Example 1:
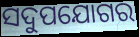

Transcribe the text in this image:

ସଦୁପଯୋଗର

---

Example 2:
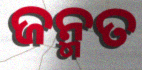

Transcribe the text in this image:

ଜନ୍ମତ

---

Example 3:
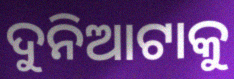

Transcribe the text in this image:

ଦୁନିଆଟାକୁ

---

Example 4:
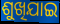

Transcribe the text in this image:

ଶୁଖିଯାଇ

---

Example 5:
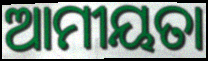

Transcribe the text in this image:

ଆମୀୟତା